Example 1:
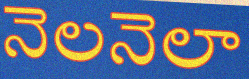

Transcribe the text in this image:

నెలనెలా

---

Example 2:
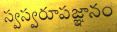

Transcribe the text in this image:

స్వస్వరూపజ్ఞానం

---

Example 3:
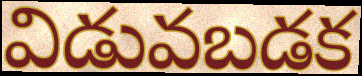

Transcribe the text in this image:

విడువబడక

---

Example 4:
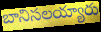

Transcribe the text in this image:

బానిసలయ్యారు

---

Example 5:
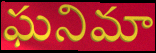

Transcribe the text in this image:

ఘనిమా